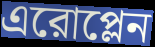
এরোপ্লেন